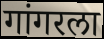
गांगरला